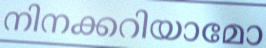
നിനക്കറിയാമോ